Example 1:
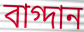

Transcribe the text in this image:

বাগ্দান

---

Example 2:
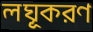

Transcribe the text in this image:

লঘূকরণ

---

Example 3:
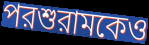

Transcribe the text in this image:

পরশুরামকেও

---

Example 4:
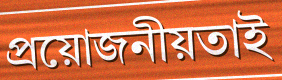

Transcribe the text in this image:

প্রয়োজনীয়তাই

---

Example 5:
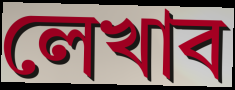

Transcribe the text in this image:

লেখাব